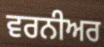
ਵਰਨੀਅਰ